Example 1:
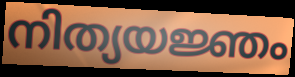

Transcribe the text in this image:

നിത്യയജ്ഞം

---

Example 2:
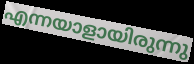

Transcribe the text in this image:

എന്നയാളായിരുന്നു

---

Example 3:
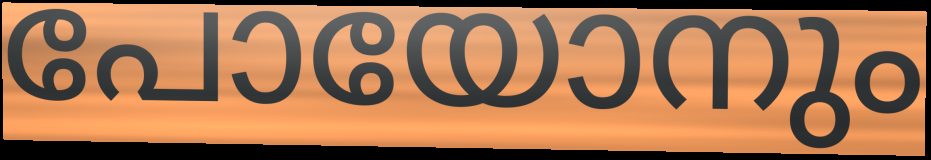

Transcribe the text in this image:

പോയോനും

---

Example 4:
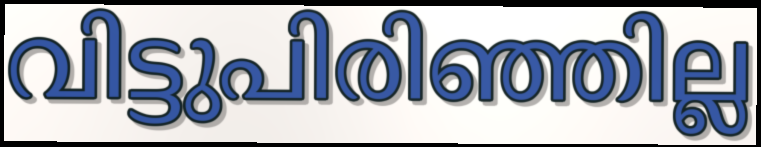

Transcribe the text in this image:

വിട്ടുപിരിഞ്ഞില്ല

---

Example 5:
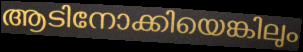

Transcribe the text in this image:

ആടിനോക്കിയെങ്കിലും